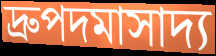
দ্রুপদমাসাদ্য